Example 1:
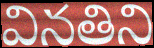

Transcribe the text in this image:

వినతిని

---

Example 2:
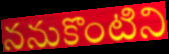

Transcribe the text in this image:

ననుకొంటిని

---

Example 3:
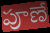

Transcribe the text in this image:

పూణే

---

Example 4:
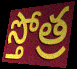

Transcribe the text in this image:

స్తోత్ర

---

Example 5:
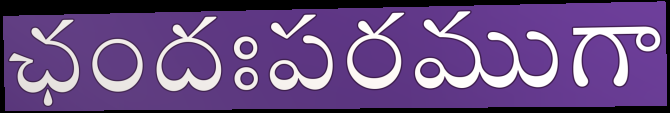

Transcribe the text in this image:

ఛందఃపరముగా